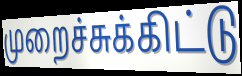
முறைச்சுக்கிட்டு